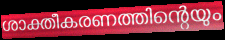
ശാക്തീകരണത്തിന്റെയും